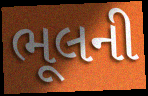
ભૂલની